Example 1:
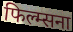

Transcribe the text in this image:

फिल्म्सना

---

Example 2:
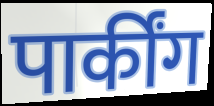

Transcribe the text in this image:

पार्कींग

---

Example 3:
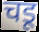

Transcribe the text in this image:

चडू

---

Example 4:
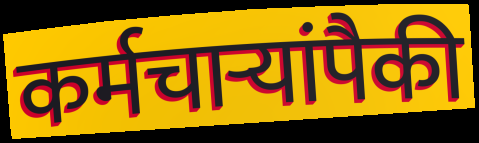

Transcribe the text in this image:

कर्मचाऱ्यांपैकी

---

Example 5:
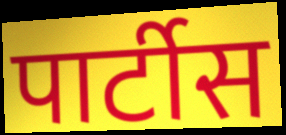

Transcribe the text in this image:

पार्टीस